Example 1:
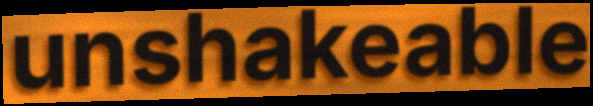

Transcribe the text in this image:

unshakeable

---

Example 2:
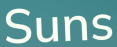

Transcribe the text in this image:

Suns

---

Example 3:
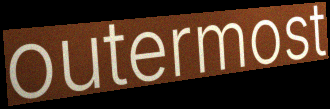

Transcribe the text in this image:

outermost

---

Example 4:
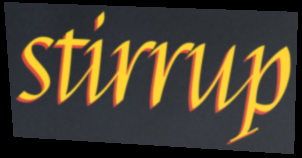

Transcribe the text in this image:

stirrup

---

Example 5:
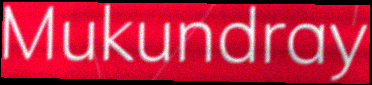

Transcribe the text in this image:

Mukundray